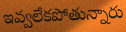
ఇవ్వలేకపోతున్నారు